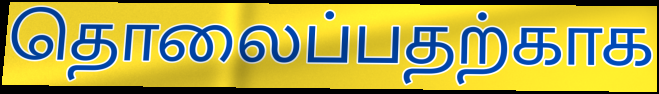
தொலைப்பதற்காக